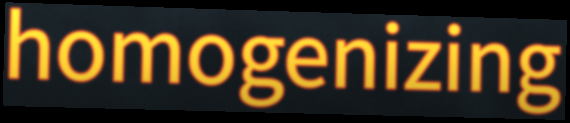
homogenizing